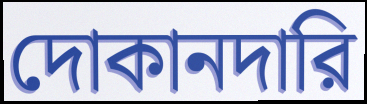
দোকানদারি